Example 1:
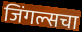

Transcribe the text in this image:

जिंगल्सचा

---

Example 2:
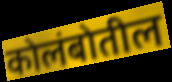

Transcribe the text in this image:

कोलंबोतील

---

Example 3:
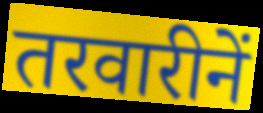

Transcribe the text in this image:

तरवारीनें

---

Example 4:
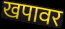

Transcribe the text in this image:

खपावर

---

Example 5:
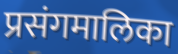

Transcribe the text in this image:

प्रसंगमालिका